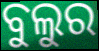
ବୁଲୁର